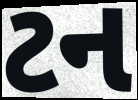
ટન